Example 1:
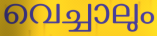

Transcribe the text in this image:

വെച്ചാലും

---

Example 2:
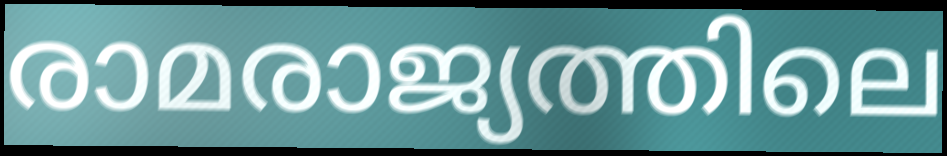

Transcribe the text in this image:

രാമരാജ്യത്തിലെ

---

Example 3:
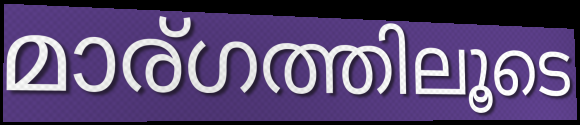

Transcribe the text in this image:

മാര്ഗത്തിലൂടെ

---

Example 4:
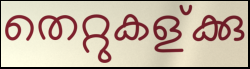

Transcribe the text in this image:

തെറ്റുകള്ക്കു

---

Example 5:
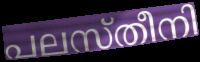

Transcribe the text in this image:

പലസ്തീനി